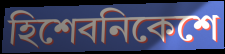
হিশেবনিকেশে